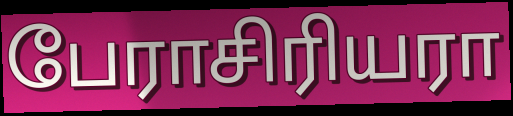
பேராசிரியரா